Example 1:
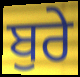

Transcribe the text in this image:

ਬੁਰੇ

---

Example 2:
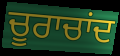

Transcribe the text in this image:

ਚੂਰਾਚਾਂਦ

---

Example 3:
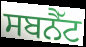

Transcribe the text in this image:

ਸਬਨੈੱਟ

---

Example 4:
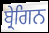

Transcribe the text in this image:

ਬ੍ਰੇਗਿਨ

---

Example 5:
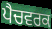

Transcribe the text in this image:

ਪੈਚਵਰਕ